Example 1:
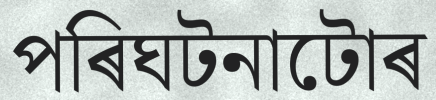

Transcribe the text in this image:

পৰিঘটনাটোৰ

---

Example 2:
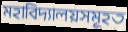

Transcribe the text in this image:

মহাবিদ্যালয়সমূহত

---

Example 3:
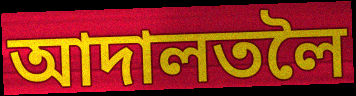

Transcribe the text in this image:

আদালতলৈ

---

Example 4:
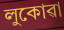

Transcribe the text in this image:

লুকোৱা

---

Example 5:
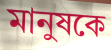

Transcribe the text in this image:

মানুষকে